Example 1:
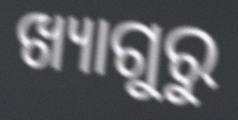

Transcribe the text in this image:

ଖ୍ୟାଗୁରୁ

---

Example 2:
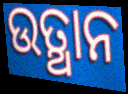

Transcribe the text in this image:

ଉତ୍ଥାନ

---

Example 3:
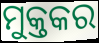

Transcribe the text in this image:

ମୁକ୍ତକର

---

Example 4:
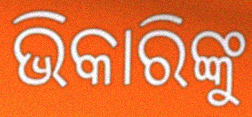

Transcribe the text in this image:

ଭିକାରିଙ୍କୁ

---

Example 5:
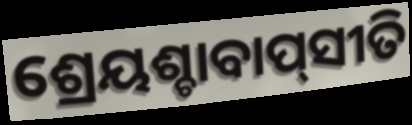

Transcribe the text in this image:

ଶ୍ରେୟଶ୍ଚାବାପ୍‌ସୀତି